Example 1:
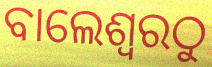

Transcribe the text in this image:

ବାଲେଶ୍ୱରଠୁ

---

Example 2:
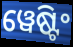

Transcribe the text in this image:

ୱେଷ୍ଟିଂ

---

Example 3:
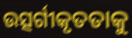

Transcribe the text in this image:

ଉତ୍ସର୍ଗୀକୃତତାକୁ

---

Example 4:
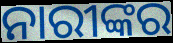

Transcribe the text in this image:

ନାରୀଙ୍କର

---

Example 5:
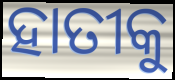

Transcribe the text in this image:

ହାତୀକୁ